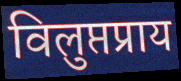
विलुप्तप्राय